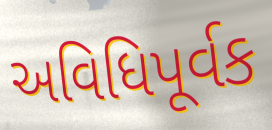
અવિધિપૂર્વક